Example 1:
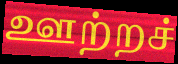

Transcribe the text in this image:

ஊற்றச்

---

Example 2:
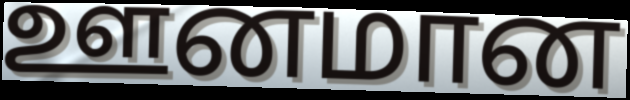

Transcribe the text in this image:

ஊனமான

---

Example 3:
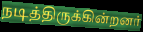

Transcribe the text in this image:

நடித்திருக்கின்றனர்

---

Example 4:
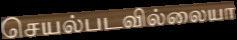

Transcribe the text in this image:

செயல்படவில்லையா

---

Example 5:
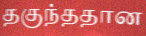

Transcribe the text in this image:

தகுந்ததான